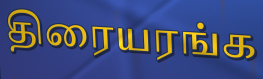
திரையரங்க